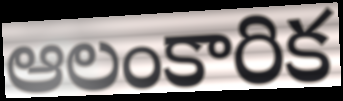
ఆలంకారిక